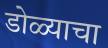
डोळ्याचा